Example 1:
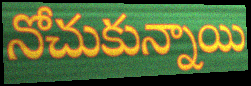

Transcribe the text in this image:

నోచుకున్నాయి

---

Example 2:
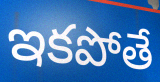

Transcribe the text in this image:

ఇకపోతే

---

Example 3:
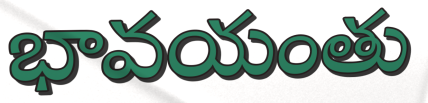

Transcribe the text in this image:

భావయంతు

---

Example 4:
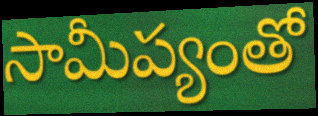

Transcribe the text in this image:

సామీప్యంతో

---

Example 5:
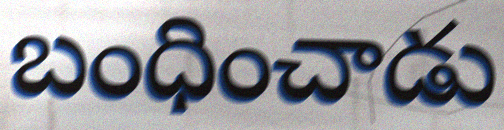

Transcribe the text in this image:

బంధించాడు